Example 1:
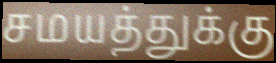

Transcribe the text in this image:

சமயத்துக்கு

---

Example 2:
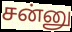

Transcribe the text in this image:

சன்னு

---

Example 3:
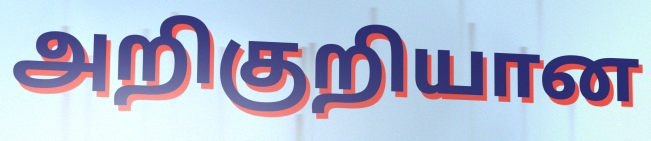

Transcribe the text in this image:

அறிகுறியான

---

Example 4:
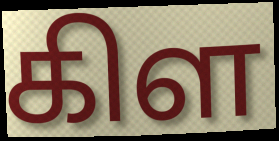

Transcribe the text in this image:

கிள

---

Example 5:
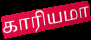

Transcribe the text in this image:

காரியமா